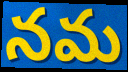
నమ